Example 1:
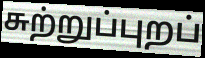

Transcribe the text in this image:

சுற்றுப்புறப்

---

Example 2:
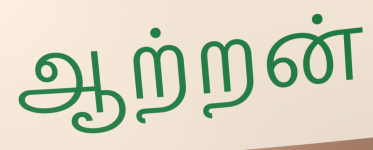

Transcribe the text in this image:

ஆற்றன்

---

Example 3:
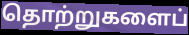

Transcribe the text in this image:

தொற்றுகளைப்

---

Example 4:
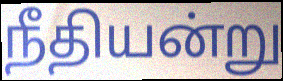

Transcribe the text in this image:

நீதியன்று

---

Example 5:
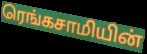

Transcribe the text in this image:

ரெங்கசாமியின்